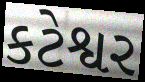
કટેશ્વર